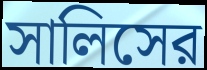
সালিসের